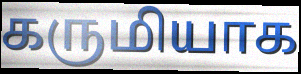
கருமியாக